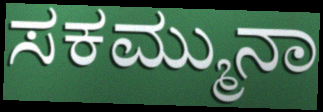
ಸಕಮ್ಮುನಾ